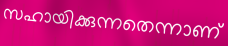
സഹായിക്കുന്നതെന്നാണ്